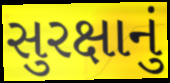
સુરક્ષાનું